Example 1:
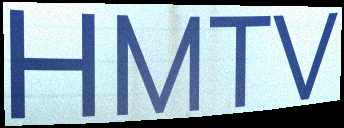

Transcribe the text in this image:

HMTV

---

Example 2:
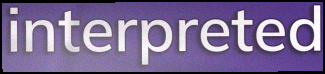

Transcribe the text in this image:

interpreted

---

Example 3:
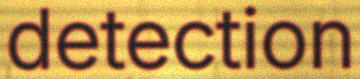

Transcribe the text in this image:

detection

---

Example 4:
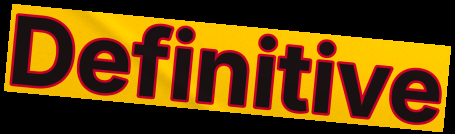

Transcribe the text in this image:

Definitive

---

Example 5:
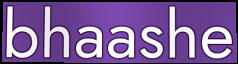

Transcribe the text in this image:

bhaashe